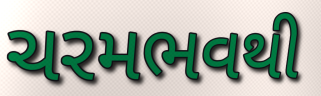
ચરમભવથી